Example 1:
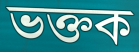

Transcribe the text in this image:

ভক্তক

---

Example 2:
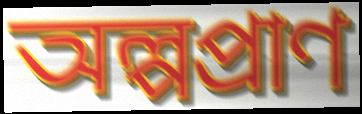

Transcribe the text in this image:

অল্পপ্ৰাণ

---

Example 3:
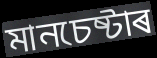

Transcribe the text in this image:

মানচেষ্টাৰ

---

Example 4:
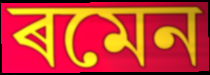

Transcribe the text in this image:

ৰমেন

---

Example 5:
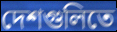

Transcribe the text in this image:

দেশগুলিতে